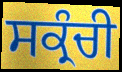
ਸਕ੍ਰੰਚੀ